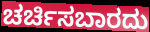
ಚರ್ಚಿಸಬಾರದು